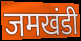
जमखंडी